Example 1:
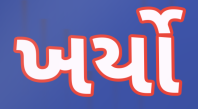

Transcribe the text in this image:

ખર્યો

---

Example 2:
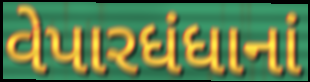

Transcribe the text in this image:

વેપારધંધાનાં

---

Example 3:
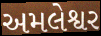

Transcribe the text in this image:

અમલેશ્વર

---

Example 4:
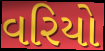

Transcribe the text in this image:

વરિયો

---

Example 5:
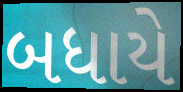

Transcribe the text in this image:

બધાયે